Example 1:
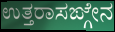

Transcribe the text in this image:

ಉತ್ತರಾಸಙ್ಗೇನ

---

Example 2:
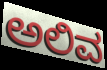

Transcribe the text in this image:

ಅಲಿವ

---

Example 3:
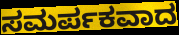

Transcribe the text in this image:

ಸಮರ್ಪಕವಾದ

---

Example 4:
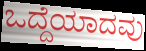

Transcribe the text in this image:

ಒದ್ದೆಯಾದವು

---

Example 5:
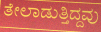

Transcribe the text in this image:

ತೇಲಾಡುತ್ತಿದ್ದವು